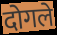
दोगले